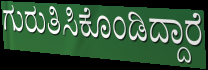
ಗುರುತಿಸಿಕೊಂಡಿದ್ದಾರೆ